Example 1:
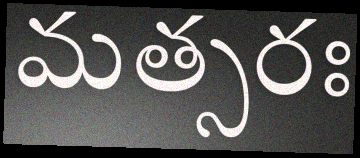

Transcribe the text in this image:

మత్సరః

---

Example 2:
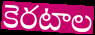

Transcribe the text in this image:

కెరటాల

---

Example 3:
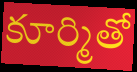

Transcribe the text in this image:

కూర్మితో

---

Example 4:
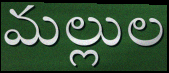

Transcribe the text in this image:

మల్లుల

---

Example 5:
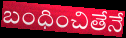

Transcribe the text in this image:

బంధించితేనే